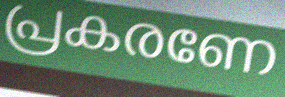
പ്രകരണേ